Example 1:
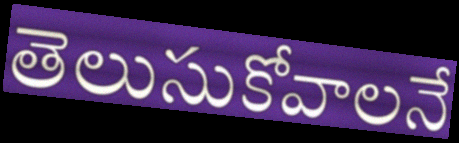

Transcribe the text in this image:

తెలుసుకోవాలనే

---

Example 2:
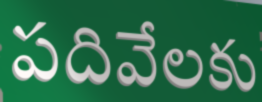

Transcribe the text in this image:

పదివేలకు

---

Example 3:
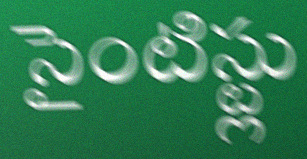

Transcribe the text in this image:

సైంటిస్ట్లు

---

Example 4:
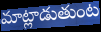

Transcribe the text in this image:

మాట్లాడుతుంట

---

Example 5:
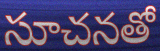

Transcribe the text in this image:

సూచనతో